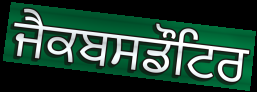
ਜੈਕਬਸਡੌਟਿਰ